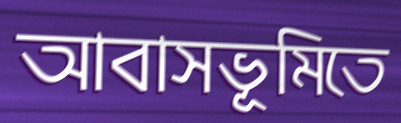
আবাসভূমিতে